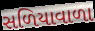
સળિયાવાળા